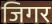
जिगर